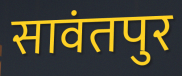
सावंतपुर